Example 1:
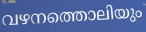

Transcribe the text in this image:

വഴനത്തൊലിയും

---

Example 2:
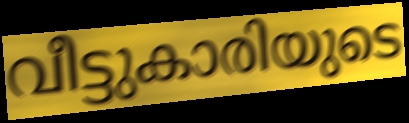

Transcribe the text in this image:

വീട്ടുകാരിയുടെ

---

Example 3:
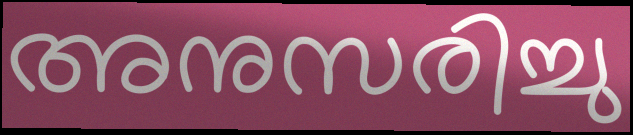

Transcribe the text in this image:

അനുസരിച്ചു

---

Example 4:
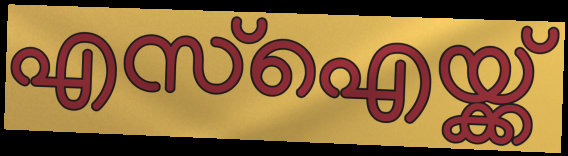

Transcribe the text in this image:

എസ്ഐയ്ക്ക്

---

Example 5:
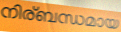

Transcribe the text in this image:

നിര്ബന്ധമായ